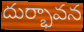
దుర్భావన